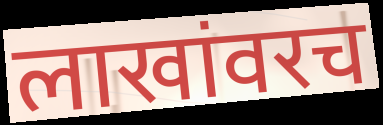
लाखांवरच